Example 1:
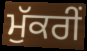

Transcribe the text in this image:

ਮੁੱਕਰੀਂ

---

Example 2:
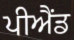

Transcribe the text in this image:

ਪੀਐਂਡ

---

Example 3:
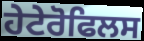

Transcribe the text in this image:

ਹੇਟੇਰੋਫਿਲਸ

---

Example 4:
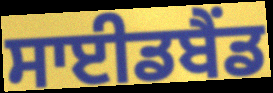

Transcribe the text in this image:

ਸਾਈਡਬੈਂਡ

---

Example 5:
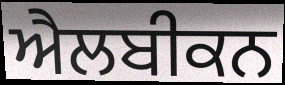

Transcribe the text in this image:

ਐਲਬੀਕਨ